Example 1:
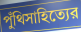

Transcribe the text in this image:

পুঁথিসাহিত্যের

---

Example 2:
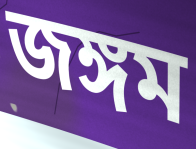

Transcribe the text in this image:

জঙ্গম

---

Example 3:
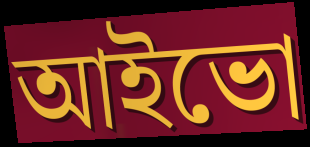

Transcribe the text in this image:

আইভো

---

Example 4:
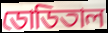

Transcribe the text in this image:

ডোডিতাল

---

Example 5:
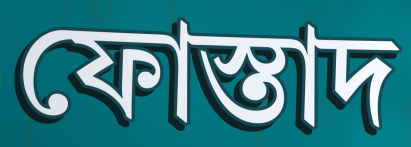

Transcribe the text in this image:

ফোস্তাদ